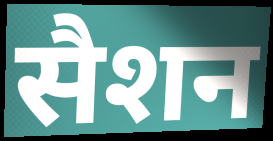
सैशन